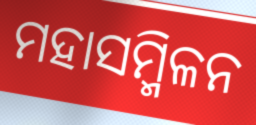
ମହାସମ୍ମିଳନ